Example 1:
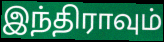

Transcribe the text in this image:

இந்திராவும்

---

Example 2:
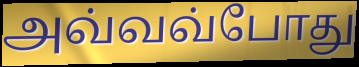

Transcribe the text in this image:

அவ்வவ்போது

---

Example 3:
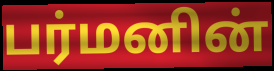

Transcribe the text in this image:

பர்மனின்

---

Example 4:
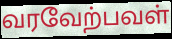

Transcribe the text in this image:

வரவேற்பவள்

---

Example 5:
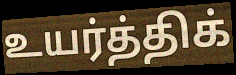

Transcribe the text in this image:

உயர்த்திக்